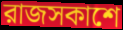
রাজসকাশে